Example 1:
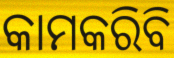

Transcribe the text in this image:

କାମକରିବି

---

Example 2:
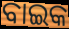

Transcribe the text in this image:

ବାଇକ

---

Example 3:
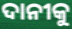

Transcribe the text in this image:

ଦାନୀକୁ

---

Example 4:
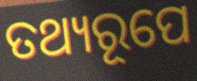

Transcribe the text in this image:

ତଥ୍ୟରୂପେ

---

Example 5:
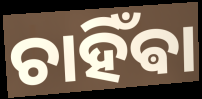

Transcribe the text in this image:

ଚାହିଁଵା